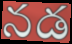
నడ